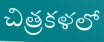
చిత్రకళలో